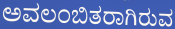
ಅವಲಂಬಿತರಾಗಿರುವ